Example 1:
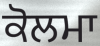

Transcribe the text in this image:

ਕੋਲਮਾ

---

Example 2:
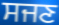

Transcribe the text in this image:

ਸਜਣ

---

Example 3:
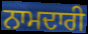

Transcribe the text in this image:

ਨਾਮਦਾਰੀ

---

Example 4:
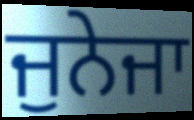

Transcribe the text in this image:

ਜੁਨੇਜਾ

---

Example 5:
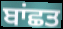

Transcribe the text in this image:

ਬਾਂਛਤ